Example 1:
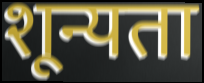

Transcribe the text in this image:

शून्‍यता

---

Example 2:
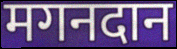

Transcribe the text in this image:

मगनदान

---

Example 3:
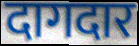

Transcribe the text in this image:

दागदार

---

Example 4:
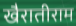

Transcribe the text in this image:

खैरातीराम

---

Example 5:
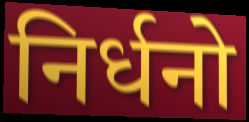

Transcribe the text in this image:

निर्धनो